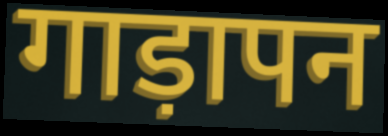
गाड़ापन